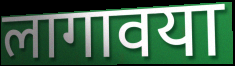
लागावया